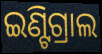
ଇଣ୍ଟିଗ୍ରାଲ